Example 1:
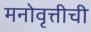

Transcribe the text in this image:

मनोवृत्तीची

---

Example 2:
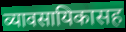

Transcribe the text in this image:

व्यावसायिकासह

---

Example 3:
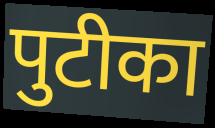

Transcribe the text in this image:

पुटीका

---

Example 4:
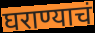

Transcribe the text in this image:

घराण्याचं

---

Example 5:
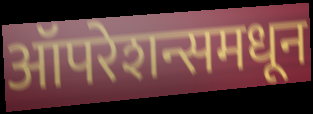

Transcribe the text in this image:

ऑपरेशन्समधून